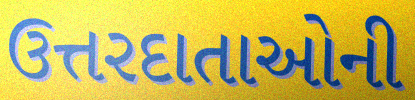
ઉત્તરદાતાઓની